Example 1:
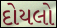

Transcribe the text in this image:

દોયલો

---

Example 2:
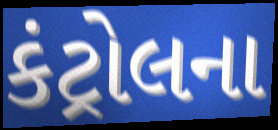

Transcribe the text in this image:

કંટ્રોલના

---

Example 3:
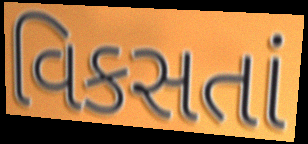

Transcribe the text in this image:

વિકસતાં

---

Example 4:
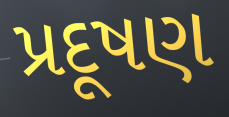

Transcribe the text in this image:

પ્રદૂષણ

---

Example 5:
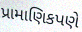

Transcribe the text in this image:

પ્રામાણિકપણે